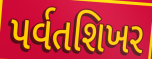
પર્વતશિખર